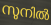
സുനിൽ